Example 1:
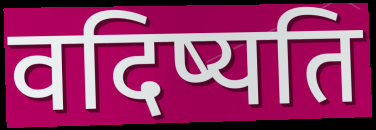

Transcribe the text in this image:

वदिष्यति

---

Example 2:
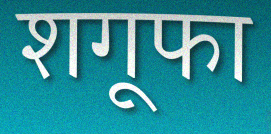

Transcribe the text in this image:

शगूफा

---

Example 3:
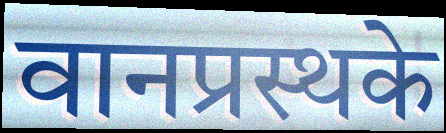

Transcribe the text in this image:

वानप्रस्थके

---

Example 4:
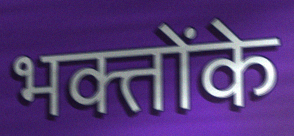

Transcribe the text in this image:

भक्तोंके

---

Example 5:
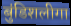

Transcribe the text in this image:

बुंडिशलीगा